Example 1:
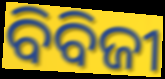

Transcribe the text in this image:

ବିବିଜୀ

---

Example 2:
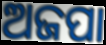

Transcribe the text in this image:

ଅଜପା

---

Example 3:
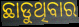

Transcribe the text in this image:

ଛାଡୁଥିବାର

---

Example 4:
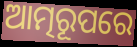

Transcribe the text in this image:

ଆତ୍ମରୂପରେ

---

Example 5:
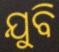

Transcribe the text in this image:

ଯୁବି